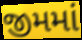
જીમમાં